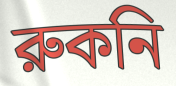
রুকনি